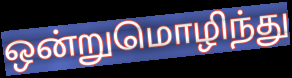
ஒன்றுமொழிந்து